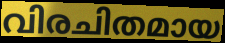
വിരചിതമായ